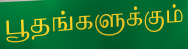
பூதங்களுக்கும்